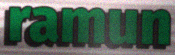
ramun